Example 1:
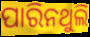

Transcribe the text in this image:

ପାରିନଥୁଲି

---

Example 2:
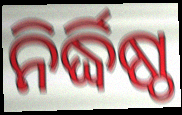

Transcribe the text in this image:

ନିର୍ଦ୍ଧିଷ୍ଠ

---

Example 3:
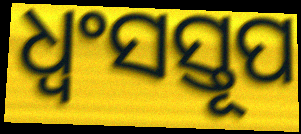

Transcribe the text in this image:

ଧ୍ୱଂସସ୍ତୂପ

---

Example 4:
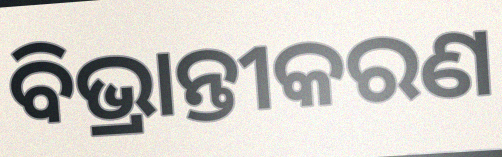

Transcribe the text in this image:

ବିଭ୍ରାନ୍ତୀକରଣ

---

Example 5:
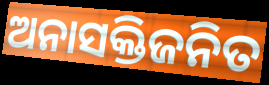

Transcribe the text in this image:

ଅନାସକ୍ତିଜନିତ